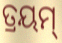
ତ୍ରୟମ୍